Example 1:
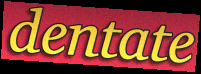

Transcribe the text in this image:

dentate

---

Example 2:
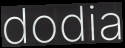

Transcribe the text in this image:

dodia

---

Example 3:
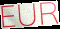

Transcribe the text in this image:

EUR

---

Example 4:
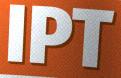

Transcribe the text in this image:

IPT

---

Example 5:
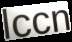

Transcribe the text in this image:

lccn